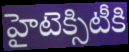
హైటెక్సిటీకి